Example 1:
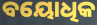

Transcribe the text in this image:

ବୟୋଧିକ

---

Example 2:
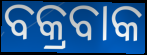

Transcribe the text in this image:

ବକ୍ରବାକ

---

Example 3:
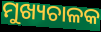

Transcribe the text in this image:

ମୁଖ୍ୟଚାଳକ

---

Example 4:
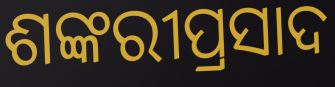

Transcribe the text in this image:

ଶଙ୍କରୀପ୍ରସାଦ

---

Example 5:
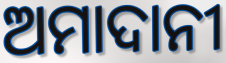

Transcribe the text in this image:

ଅମାଦାନୀ